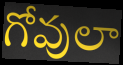
గోవులా